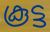
കൂട്ട